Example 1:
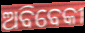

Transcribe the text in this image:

ଅବିବେକୀ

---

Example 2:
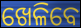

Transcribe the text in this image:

ଖେଳିବେ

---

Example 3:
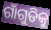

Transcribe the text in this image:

ଗାଁଗୁଡିକୁ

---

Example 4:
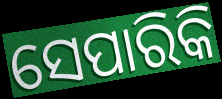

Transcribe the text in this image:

ସେପାରିକି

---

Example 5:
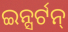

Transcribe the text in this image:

ଇନ୍ସର୍ଟନ୍